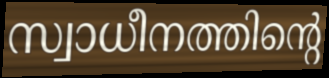
സ്വാധീനത്തിന്റെ